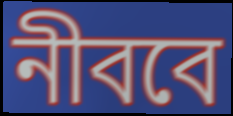
নীববে